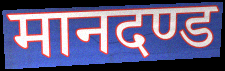
मानदण्ड